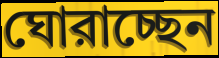
ঘোরাচ্ছেন